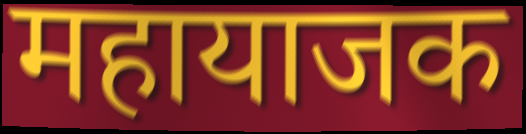
महायाजक